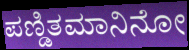
ಪಣ್ಡಿತಮಾನಿನೋ